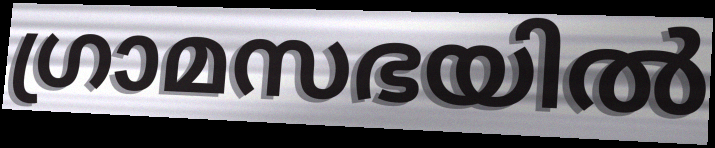
ഗ്രാമസഭയിൽ